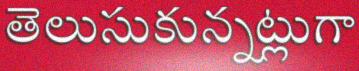
తెలుసుకున్నట్లుగా